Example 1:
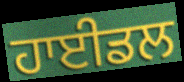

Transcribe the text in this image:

ਹਾਈਡਲ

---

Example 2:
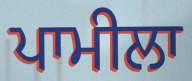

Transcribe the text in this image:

ਪਾਮੀਲਾ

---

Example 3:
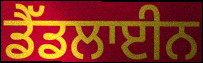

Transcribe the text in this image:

ਡੈੱਡਲਾਈਨ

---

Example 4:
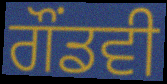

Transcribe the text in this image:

ਗੌਂਡਵੀ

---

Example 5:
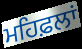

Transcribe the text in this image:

ਮਹਿਫ਼ਲਾਂ